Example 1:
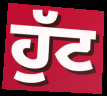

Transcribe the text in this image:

ਹੁੱਟ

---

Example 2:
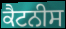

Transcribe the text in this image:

ਕੈਟਨੀਸ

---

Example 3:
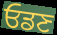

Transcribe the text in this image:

ਓਡਣ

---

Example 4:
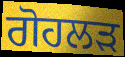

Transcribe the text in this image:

ਗੋਹਲੜ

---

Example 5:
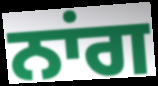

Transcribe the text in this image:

ਨਾਂਗ